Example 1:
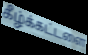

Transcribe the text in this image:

கீழ்க்கட்டளை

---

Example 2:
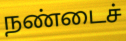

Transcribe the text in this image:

நண்டைச்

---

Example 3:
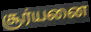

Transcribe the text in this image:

சூர்யனை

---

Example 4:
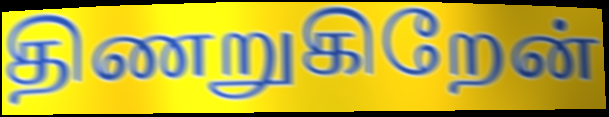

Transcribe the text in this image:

திணறுகிறேன்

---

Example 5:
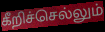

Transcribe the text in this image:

கீறிச்செல்லும்